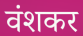
वंशकर